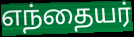
எந்தையர்